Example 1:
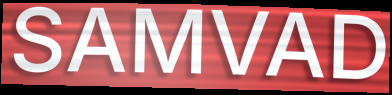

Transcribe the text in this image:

SAMVAD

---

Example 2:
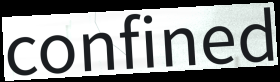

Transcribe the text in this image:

confined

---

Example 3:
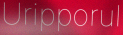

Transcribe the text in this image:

Uripporul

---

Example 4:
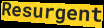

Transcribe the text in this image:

Resurgent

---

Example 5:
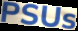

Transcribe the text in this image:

PSUs